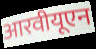
आरवीयूएन